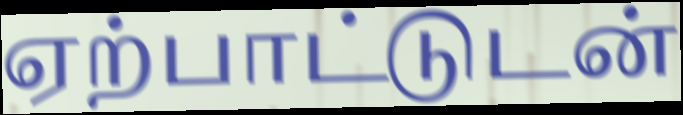
ஏற்பாட்டுடன்